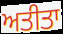
ਅਤੀਤਾ